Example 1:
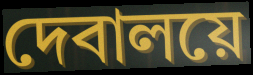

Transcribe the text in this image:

দেবালয়ে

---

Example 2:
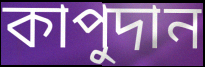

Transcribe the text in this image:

কাপুদান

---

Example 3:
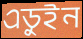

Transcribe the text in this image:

এডুইন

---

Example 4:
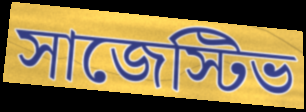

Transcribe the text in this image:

সাজেস্টিভ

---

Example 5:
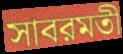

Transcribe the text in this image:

সাবরমতী